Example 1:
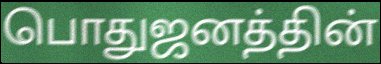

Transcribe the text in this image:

பொதுஜனத்தின்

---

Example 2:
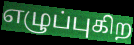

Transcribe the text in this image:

எழுப்புகிற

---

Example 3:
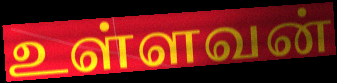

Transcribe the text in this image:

உள்ளவன்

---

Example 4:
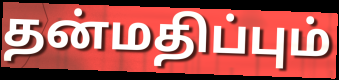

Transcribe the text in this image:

தன்மதிப்பும்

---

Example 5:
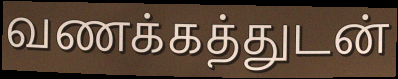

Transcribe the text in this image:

வணக்கத்துடன்